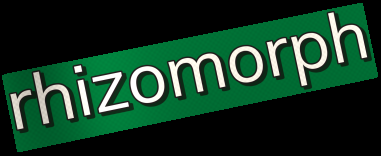
rhizomorph